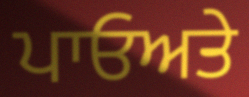
ਪਾਓਅਤੇ